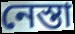
নেস্তা